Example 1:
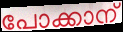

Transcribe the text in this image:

പോക്കാന്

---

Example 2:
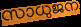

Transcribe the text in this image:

സാധുജന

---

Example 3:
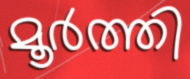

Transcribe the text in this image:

മൂർത്തി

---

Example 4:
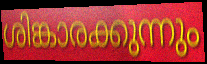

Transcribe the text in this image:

ശിങ്കാരക്കുന്നും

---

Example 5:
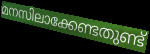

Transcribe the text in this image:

മനസിലാക്കേണ്ടതുണ്ട്